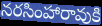
నరసింహారావుకి